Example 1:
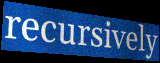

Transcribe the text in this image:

recursively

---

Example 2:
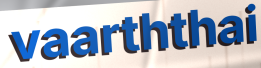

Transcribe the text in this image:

vaarththai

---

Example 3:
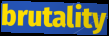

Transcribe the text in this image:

brutality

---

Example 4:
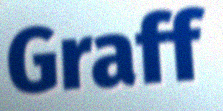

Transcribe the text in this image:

Graff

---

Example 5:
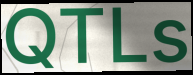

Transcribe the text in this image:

QTLs